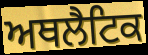
ਅਥਲੈਟਿਕ